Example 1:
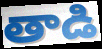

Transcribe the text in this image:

తాడి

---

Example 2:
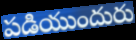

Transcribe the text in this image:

పడియుందురు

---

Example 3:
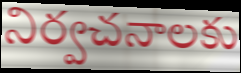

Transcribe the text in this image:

నిర్వచనాలకు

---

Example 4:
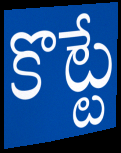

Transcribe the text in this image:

కొట్టే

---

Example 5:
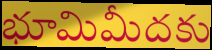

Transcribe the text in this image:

భూమిమీదకు